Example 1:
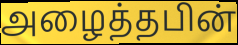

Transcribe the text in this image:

அழைத்தபின்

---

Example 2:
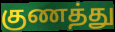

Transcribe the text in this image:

குணத்து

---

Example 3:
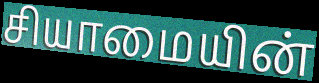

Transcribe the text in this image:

சியாமையின்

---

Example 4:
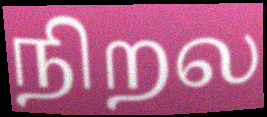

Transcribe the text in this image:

நிறல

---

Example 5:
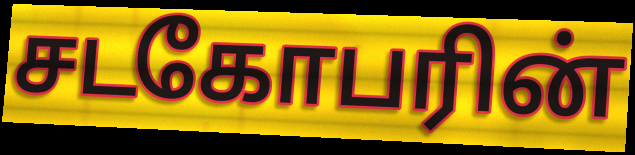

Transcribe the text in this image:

சடகோபரின்